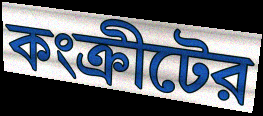
কংক্রীটের